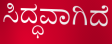
ಸಿದ್ಧವಾಗಿದೆ